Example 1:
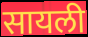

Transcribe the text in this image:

सायली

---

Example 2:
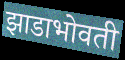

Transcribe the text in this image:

झाडाभोवती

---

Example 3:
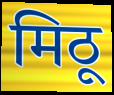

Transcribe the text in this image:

मिठू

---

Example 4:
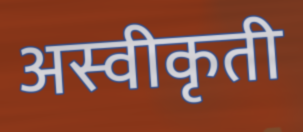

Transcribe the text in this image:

अस्वीकृती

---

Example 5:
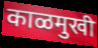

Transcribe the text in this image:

काळमुखी